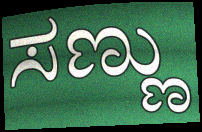
ಸಣ್ಣು